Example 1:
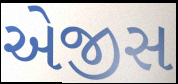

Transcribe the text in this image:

એજીસ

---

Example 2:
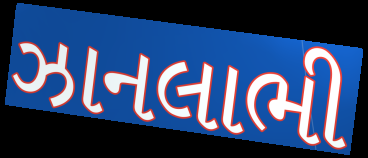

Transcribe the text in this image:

ઝાનલાભી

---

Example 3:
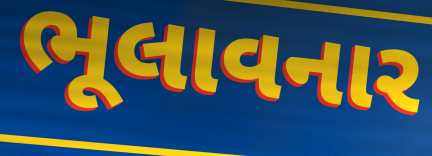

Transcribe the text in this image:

ભૂલાવનાર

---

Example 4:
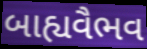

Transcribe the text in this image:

બાહ્યવૈભવ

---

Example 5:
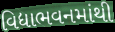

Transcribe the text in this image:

વિદ્યાભવનમાંથી